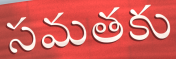
సమతకు